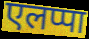
एलप्पा